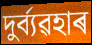
দুৰ্ব্যৱহাৰ